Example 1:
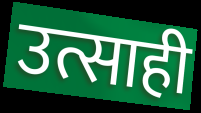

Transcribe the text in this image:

उत्साही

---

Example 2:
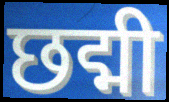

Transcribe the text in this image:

छद्मी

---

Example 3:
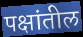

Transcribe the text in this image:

पक्षांतील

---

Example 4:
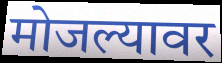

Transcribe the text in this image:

मोजल्यावर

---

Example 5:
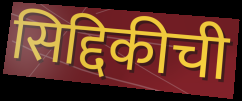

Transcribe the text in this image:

सिद्दिकीची